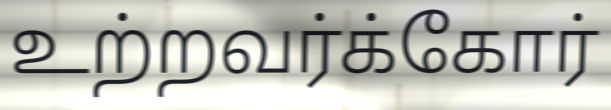
உற்றவர்க்கோர்